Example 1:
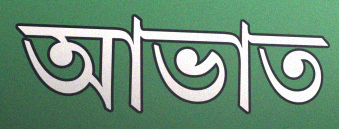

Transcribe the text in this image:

আভাত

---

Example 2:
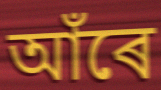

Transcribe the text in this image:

আঁৰে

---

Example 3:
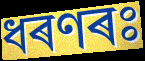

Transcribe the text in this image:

ধৰণৰঃ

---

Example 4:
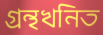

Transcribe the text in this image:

গ্ৰন্থখনিত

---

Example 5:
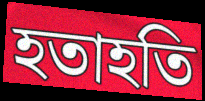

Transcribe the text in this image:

হতাহতি